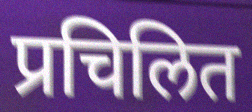
प्रचिलित